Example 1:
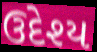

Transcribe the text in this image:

ઉદેશ્ય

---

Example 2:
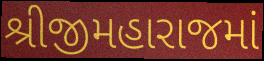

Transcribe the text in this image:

શ્રીજીમહારાજમાં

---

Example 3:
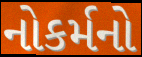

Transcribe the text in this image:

નોકર્મનો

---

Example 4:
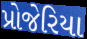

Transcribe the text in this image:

પ્રોજેરિયા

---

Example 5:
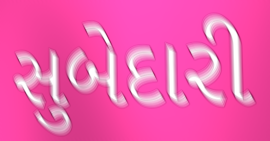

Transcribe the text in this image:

સુબેદારી